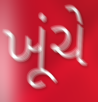
ખૂંચે